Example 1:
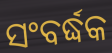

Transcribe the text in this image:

ସଂବର୍ଦ୍ଧକ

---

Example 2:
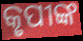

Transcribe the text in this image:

କୃପୀଙ୍କ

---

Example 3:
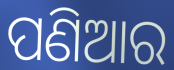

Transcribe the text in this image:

ପଣିଆର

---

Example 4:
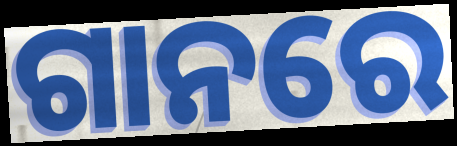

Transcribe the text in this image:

ଗାନରେ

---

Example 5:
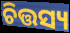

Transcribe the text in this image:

ଚିତ୍ତସ୍ୟ